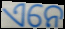
ଏନେ